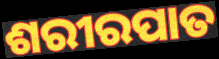
ଶରୀରପାତ